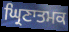
ਘ੍ਰਿਣਾਤਮਕ